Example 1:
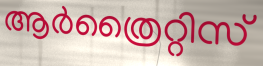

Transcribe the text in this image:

ആർത്രൈറ്റിസ്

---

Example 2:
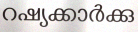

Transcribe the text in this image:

റഷ്യക്കാർക്കു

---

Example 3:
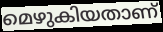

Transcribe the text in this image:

മെഴുകിയതാണ്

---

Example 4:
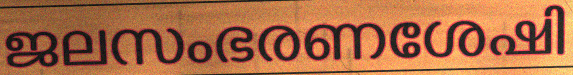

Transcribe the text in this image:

ജലസംഭരണശേഷി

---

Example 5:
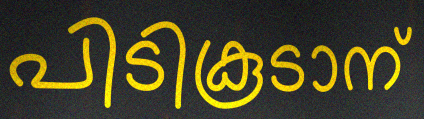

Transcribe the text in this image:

പിടികൂടാന്